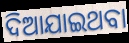
ଦିଆଯାଇଥବା